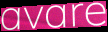
avare